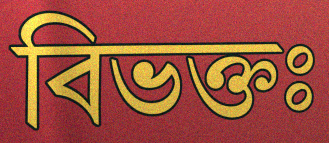
বিভক্তঃ